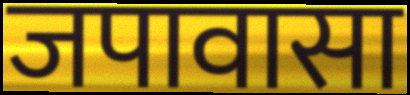
जपावासा